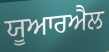
ਯੂਆਰਐਲ